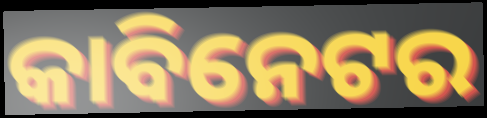
କାବିନେଟର